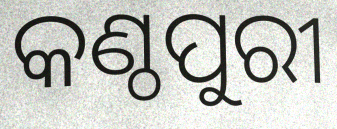
କଣ୍ଠପୁରୀ